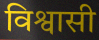
विश्वासी